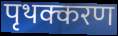
पृथक्करण